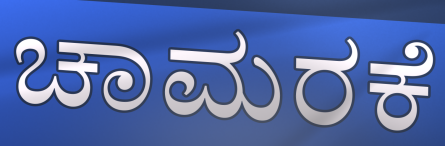
ಚಾಮರಕೆ